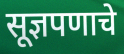
सूज्ञपणाचे